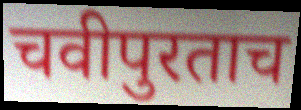
चवीपुरताच